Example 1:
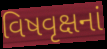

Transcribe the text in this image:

વિષવૃક્ષનાં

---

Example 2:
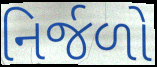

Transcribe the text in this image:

નિર્જળો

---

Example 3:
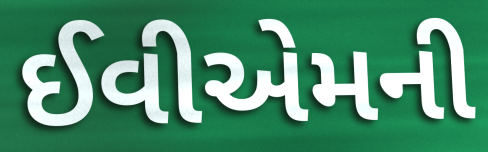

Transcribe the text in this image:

ઈવીએમની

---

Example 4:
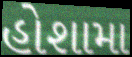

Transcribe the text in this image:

હોશામા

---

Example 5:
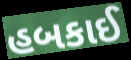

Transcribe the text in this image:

હબકાઈ